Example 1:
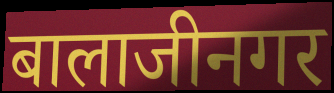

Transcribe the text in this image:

बालाजीनगर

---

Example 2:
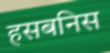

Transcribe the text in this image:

हसबनिस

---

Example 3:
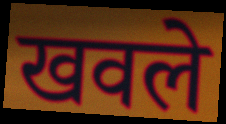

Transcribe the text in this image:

खवले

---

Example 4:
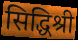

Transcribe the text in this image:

सिद्धिश्री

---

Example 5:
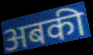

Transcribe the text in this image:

अबकी